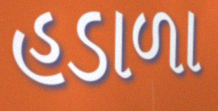
હડાળા